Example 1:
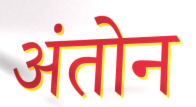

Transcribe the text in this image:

अंतोन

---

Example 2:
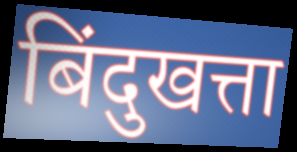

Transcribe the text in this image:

बिंदुखत्ता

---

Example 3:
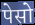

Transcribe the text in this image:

पेसो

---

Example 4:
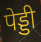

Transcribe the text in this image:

पेड्डी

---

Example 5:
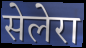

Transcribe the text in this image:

सेलेरा